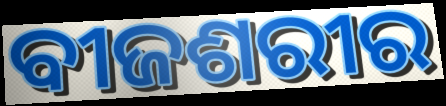
ବୀଜଶରୀର